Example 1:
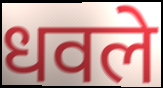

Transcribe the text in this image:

धवले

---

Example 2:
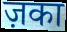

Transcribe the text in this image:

ज़का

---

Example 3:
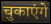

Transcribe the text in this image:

चुकाएंगे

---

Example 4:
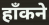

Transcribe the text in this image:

हाँकने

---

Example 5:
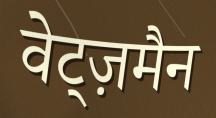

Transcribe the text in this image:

वेट्ज़मैन